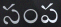
సంప